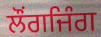
ਲੌਂਗਜਿੰਗ